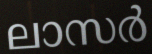
ലാസർ